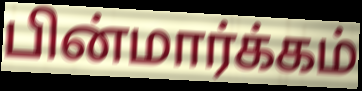
பின்மார்க்கம்